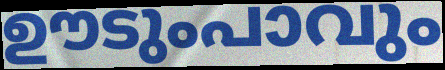
ഊടുംപാവും